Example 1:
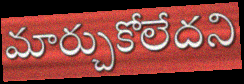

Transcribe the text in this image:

మార్చుకోలేదని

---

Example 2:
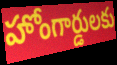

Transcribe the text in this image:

హోంగార్డులకు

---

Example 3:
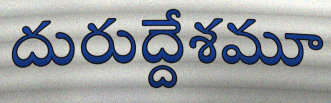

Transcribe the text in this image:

దురుద్దేశమూ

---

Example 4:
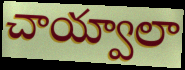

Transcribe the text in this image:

చాయ్వాలా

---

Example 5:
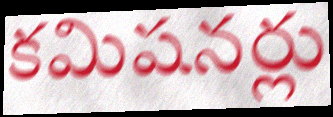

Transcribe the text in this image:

కమిషనర్లు